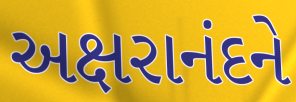
અક્ષરાનંદને